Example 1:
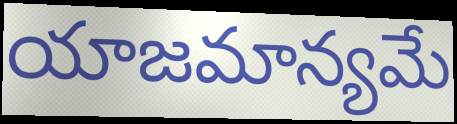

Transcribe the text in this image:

యాజమాన్యమే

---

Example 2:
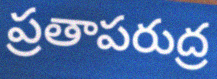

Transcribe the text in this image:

ప్రతాపరుద్ర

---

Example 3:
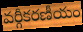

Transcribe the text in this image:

వర్గీకరణీయం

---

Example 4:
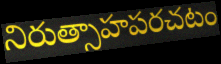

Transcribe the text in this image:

నిరుత్సాహపరచటం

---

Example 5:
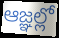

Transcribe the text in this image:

ఆజ్ఞల్లో